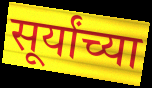
सूर्यांच्या